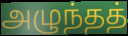
அழுந்தத்